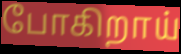
போகிறாய்